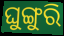
ଘୁଙ୍ଗୁରି